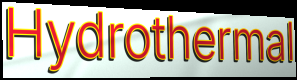
Hydrothermal